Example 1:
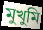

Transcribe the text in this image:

মুখুমি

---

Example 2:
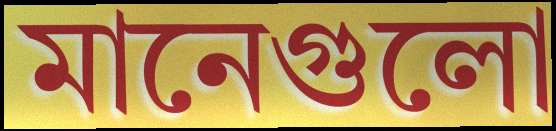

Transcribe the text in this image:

মানেগুলো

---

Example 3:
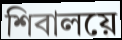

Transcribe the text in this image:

শিবালয়ে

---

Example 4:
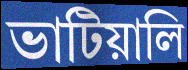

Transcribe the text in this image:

ভাটিয়ালি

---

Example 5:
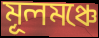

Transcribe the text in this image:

মূলমঞ্চে